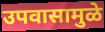
उपवासामुळे